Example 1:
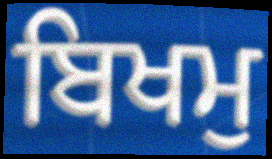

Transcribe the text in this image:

ਬਿਖਮੁ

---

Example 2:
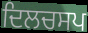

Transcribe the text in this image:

ਦਿਲਚਸਪ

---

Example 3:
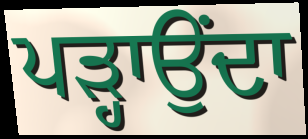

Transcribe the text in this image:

ਪੜ੍ਹਾਉਂਦਾ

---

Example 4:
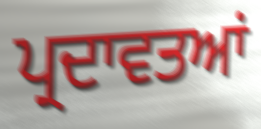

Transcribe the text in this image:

ਪ੍ਰਦਾਵਤਆਂ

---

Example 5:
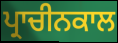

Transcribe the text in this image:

ਪ੍ਰਾਚੀਨਕਾਲ